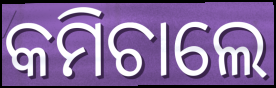
କମିଚାଲେ